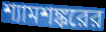
শ্যামশঙ্করের